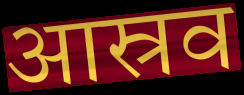
आस्रव